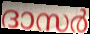
ദാസർ